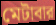
মেটাবার